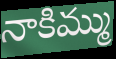
నాకిమ్ము